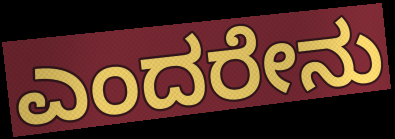
ಎಂದರೇನು